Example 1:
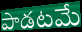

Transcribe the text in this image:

పాడటమే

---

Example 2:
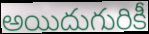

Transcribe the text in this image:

అయిదుగురికీ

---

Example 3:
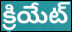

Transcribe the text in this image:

క్రియేట్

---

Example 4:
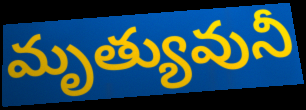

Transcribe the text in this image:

మృత్యువునీ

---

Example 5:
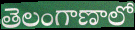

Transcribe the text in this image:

తెలంగాణాలో